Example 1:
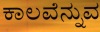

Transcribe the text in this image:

ಕಾಲವೆನ್ನುವ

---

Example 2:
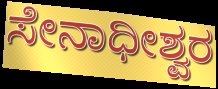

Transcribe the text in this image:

ಸೇನಾಧೀಶ್ವರ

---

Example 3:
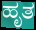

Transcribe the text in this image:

ಹೃತ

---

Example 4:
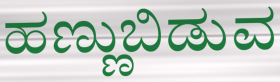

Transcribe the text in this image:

ಹಣ್ಣುಬಿಡುವ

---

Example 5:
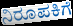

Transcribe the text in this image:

ನಿರೂಪಕಿಗೆ